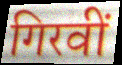
गिरवीं